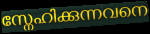
സ്നേഹിക്കുന്നവനെ